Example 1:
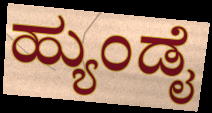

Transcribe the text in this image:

ಹ್ಯುಂಡೈ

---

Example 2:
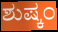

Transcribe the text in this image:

ಶುಷ್ಕಂ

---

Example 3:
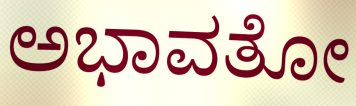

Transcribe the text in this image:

ಅಭಾವತೋ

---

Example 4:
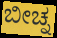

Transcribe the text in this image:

ಬೀಚ್ನ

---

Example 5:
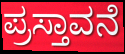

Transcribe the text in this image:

ಪ್ರಸ್ತಾವನೆ